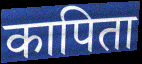
कापिता